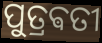
ପୁତ୍ରଵତୀ